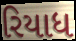
રિયાધ